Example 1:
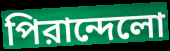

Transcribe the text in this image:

পিরান্দেলো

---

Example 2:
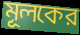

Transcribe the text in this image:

মূলকের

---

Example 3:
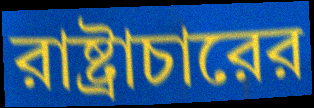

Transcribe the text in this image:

রাষ্ট্রাচারের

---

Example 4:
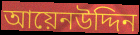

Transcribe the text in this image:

আয়েনউদ্দিন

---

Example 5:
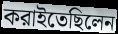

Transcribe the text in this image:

করাইতেছিলেন